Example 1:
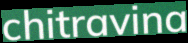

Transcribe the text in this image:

chitravina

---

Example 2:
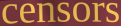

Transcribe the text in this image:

censors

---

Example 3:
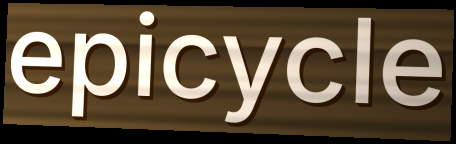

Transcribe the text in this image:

epicycle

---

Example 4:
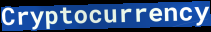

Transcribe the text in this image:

Cryptocurrency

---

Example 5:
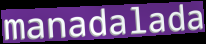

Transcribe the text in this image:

manadalada